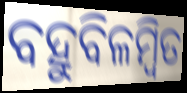
ବହୁବିଳମ୍ବିତ